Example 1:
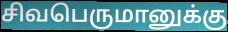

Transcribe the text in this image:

சிவபெருமானுக்கு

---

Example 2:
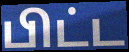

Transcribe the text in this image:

பிட்ட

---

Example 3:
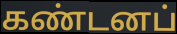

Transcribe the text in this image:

கண்டனப்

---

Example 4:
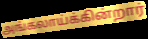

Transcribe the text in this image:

அங்கலாய்க்கின்றார்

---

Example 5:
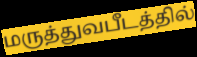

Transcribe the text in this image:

மருத்துவபீடத்தில்